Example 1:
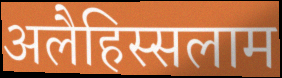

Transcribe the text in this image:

अलैहिस्सलाम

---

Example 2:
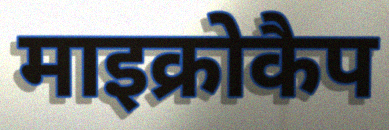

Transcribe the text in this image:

माइक्रोकैप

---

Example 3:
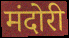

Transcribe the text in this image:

मंदोरी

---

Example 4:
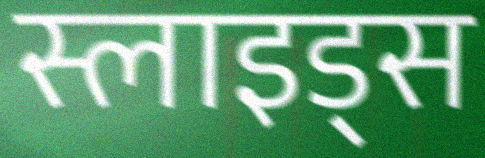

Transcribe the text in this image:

स्लाइड्स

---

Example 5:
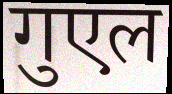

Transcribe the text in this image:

गुएल